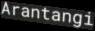
Arantangi